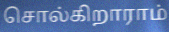
சொல்கிறாராம்